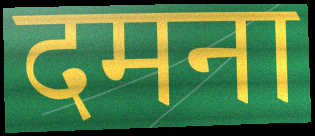
दमना